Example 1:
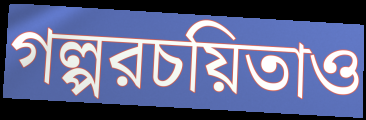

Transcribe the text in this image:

গল্পরচয়িতাও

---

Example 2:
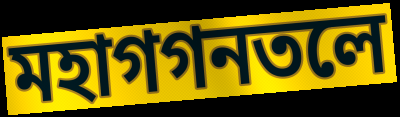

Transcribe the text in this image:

মহাগগনতলে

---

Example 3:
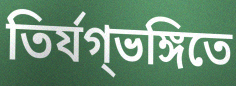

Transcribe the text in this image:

তির্যগ্ভঙ্গিতে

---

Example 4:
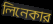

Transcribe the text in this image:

লিনেকার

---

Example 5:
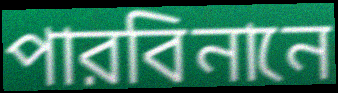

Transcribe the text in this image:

পারবিনানে